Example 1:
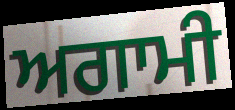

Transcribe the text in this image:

ਅਗਾਮੀ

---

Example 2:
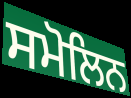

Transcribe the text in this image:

ਸਮੋਲਿਨ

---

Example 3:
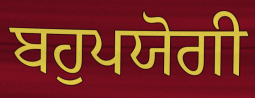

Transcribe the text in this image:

ਬਹੁਪਯੋਗੀ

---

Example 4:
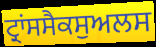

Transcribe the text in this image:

ਟ੍ਰਾਂਸਸੈਕਸੁਅਲਸ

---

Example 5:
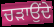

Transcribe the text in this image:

ਚੜਾਉਂਦੇ